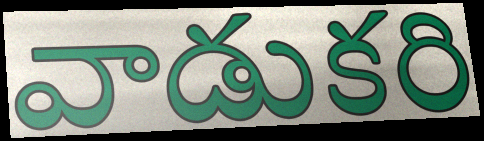
వాడుకరి